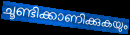
ചൂണ്ടിക്കാണിക്കുകയും